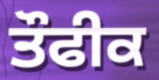
ਤੌਫੀਕ